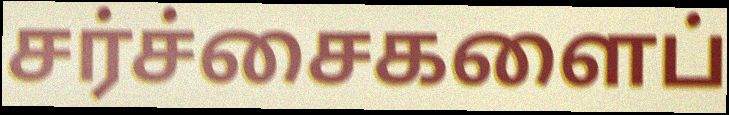
சர்ச்சைகளைப்